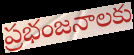
ప్రభంజనాలకు